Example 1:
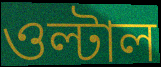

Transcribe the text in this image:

ওল্টাল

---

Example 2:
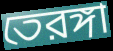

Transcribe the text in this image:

তেরঙ্গা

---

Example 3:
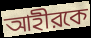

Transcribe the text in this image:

আহীরকে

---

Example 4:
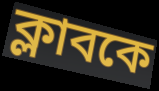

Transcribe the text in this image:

ক্লাবকে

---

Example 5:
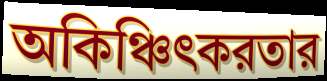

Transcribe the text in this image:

অকিঞ্চিৎকরতার